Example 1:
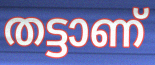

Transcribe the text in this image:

തട്ടാണ്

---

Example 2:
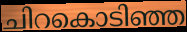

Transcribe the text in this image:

ചിറകൊടിഞ്ഞ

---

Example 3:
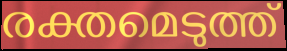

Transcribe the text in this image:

രക്തമെടുത്ത്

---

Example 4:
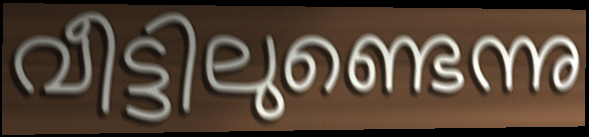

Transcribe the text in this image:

വീട്ടിലുണ്ടെന്നു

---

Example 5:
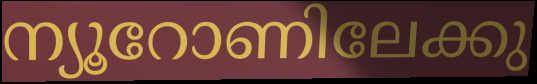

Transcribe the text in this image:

ന്യൂറോണിലേക്കു